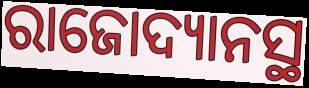
ରାଜୋଦ୍ୟାନସ୍ଥ